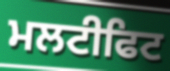
ਮਲਟੀਫਿਟ